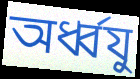
অর্ধ্বযু